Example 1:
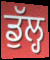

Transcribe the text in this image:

ਡੁੱਲ੍ਹ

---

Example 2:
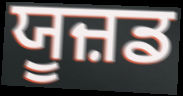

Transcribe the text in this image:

ਯੂਜ਼ਡ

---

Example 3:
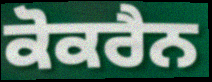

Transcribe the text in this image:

ਕੋਕਰੈਨ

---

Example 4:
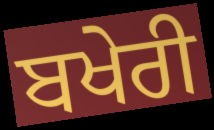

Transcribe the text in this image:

ਬਖੇਰੀ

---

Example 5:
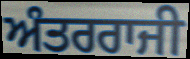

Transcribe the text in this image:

ਅੰਤਰਰਾਜੀ